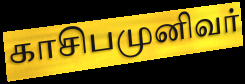
காசிபமுனிவர்